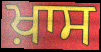
ਖ਼ਾਸ